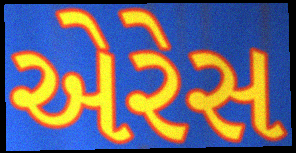
એરેસ